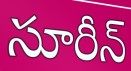
సూరీన్